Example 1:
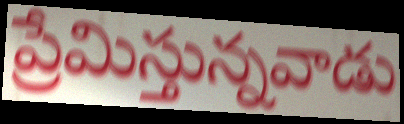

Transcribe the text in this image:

ప్రేమిస్తున్నవాడు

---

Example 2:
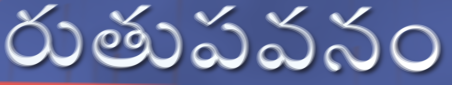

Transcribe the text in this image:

రుతుపవనం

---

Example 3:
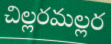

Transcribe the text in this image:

చిల్లరమల్లర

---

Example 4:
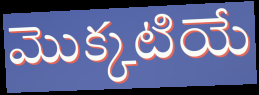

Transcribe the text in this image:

మొక్కటియే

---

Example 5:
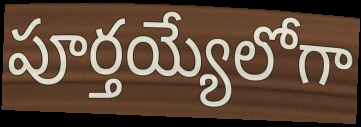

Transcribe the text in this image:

పూర్తయ్యేలోగా